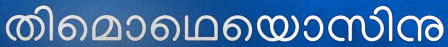
തിമൊഥെയൊസിനു